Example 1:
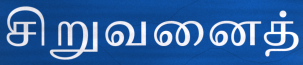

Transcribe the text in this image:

சிறுவனைத்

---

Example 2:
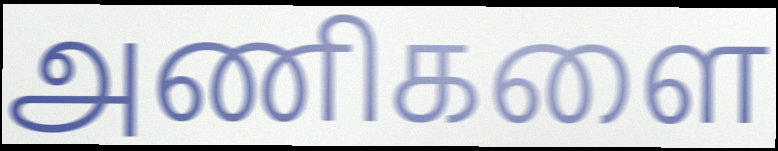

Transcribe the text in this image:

அணிகளை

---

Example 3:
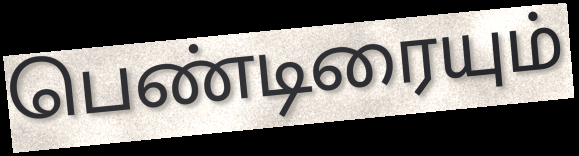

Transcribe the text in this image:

பெண்டிரையும்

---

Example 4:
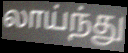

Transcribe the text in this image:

லாய்ந்து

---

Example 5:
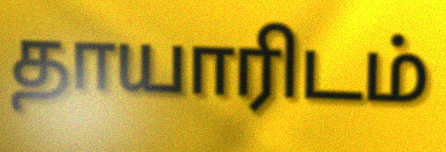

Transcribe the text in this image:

தாயாரிடம்